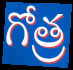
గోత్ర